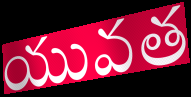
యువత